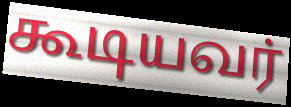
கூடியவர்